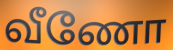
வீணோ